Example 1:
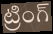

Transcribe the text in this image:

ట్రింగ్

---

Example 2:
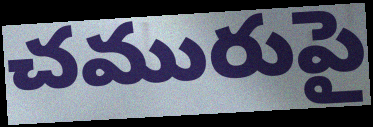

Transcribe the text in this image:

చమురుపై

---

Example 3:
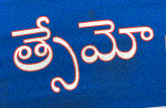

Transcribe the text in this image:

త్సేమో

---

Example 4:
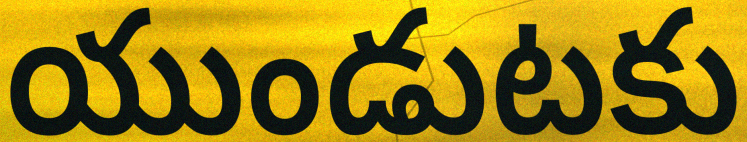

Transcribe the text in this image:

యుండుటకు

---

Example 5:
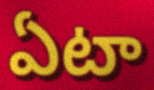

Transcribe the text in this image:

ఏటా